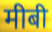
मीबी